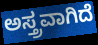
ಅಸ್ತ್ರವಾಗಿದೆ